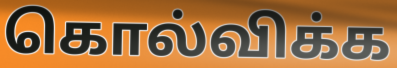
கொல்விக்க